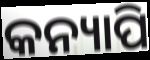
କନ୍ୟାପି